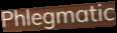
Phlegmatic